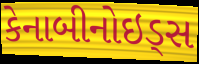
કેનાબીનોઇડ્સ